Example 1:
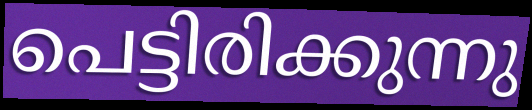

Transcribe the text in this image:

പെട്ടിരിക്കുന്നു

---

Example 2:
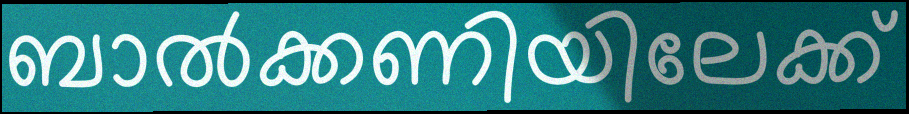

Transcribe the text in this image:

ബാൽക്കണിയിലേക്ക്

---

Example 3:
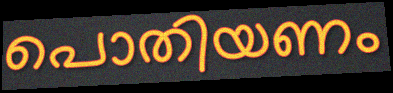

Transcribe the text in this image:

പൊതിയണം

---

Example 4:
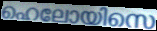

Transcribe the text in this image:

ഹെലോയിസെ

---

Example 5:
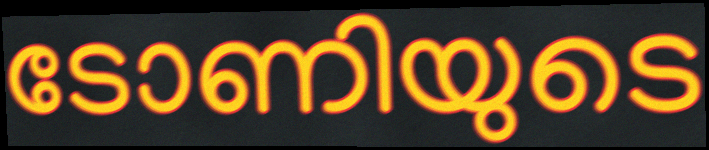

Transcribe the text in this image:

ടോണിയുടെ